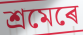
শ্ৰমেৰে